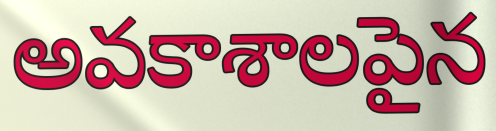
అవకాశాలపైన